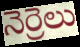
నెర్రెలు